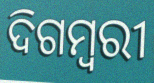
ଦିଗମ୍ୱରୀ